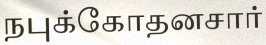
நபுக்கோதனசார்